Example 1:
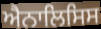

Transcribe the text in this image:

ਐਨਾਲਿਸਿਸ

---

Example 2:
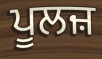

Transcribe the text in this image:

ਪੂਲਜ਼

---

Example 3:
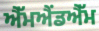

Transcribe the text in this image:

ਐੱਮਐਂਡਐੱਮ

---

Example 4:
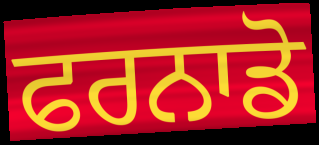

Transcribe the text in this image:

ਫਰਨਾਡੋ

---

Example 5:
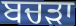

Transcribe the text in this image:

ਬਚੜਾ